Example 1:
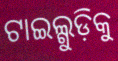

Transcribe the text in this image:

ଟାଇଲ୍ଗୁଡ଼ିକୁ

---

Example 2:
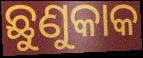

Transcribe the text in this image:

ଛୁଣୁକାକ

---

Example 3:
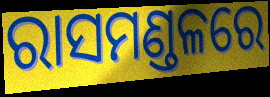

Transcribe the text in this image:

ରାସମଣ୍ଡଳରେ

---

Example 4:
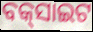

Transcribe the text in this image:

ବକ୍‌ସାଇଟ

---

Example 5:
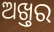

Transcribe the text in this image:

ଅଖ୍ତର